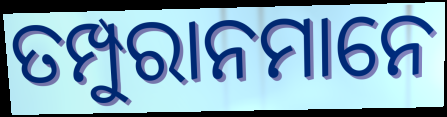
ତମ୍ପୁରାନମାନେ